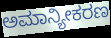
ಅಮಾನ್ಯೀಕರಣ